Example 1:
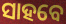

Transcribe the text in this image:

ସାହବେ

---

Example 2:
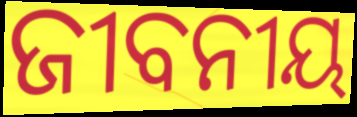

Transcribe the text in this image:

ଜୀବନୀୟ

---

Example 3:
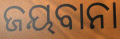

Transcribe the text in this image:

ଜୟବାନା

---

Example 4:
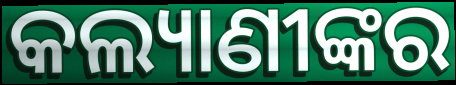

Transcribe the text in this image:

କଲ୍ୟାଣୀଙ୍କର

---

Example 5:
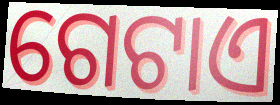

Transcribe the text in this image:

ଗେଟାଏ